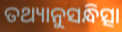
ତଥ୍ୟାନୁସନ୍ଧିତ୍ସା